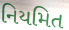
નિયમિત